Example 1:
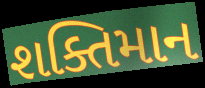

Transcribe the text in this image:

શક્તિમાન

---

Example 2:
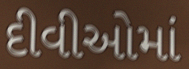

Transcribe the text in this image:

દીવીઓમાં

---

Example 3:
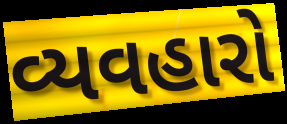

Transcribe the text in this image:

વ્યવહારો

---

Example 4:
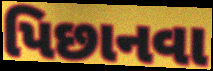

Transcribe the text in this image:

પિછાનવા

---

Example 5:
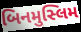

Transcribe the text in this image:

બિનમુસ્લિમ